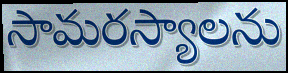
సామరస్యాలను